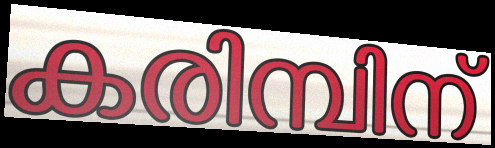
കരിമ്പിന്